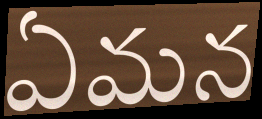
ఏమన